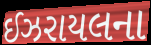
ઈઝરાયલના